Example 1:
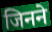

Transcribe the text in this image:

जिनने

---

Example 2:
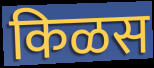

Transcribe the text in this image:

किळस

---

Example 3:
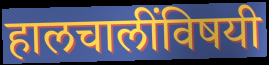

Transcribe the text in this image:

हालचालींविषयी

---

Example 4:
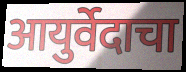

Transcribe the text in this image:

आयुर्वेदाचा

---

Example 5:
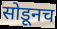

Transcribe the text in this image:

सोडूनच